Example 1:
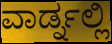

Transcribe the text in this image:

ವಾರ್ಡ್ನಲ್ಲಿ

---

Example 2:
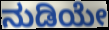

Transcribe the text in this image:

ನುಡಿಯೇ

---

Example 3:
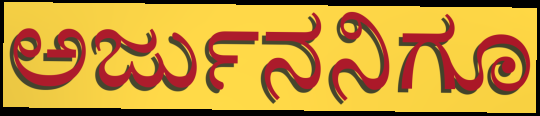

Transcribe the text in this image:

ಅರ್ಜುನನಿಗೂ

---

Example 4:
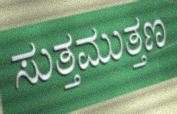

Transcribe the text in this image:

ಸುತ್ತಮುತ್ತಣ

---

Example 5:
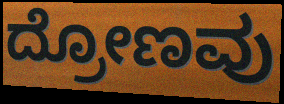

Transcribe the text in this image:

ದ್ರೋಣವು